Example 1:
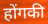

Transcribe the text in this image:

होंगकी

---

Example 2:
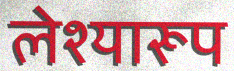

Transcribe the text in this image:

लेश्यारूप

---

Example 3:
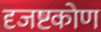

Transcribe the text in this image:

दृजष्टकोण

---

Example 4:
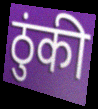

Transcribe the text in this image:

ठुंकी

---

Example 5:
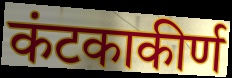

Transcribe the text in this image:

कंटकाकीर्ण